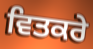
ਵਿਤਕਰੇ